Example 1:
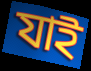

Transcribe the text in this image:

যাই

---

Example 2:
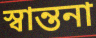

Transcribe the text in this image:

স্বান্তনা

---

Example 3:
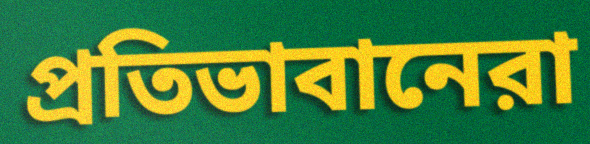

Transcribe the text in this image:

প্রতিভাবানেরা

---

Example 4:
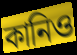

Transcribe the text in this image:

কানিও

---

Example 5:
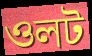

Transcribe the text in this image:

ওলট